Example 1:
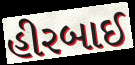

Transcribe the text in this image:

હીરબાઈ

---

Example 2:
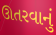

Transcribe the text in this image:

ઊતરવાનું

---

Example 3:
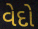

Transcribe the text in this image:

વેદો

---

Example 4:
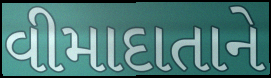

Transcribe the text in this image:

વીમાદાતાને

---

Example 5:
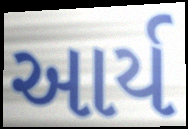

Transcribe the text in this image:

આર્ય